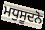
ਮਧੁਸੂਦਨੋ